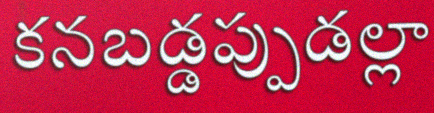
కనబడ్డప్పుడల్లా